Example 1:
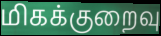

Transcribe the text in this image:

மிகக்குறைவு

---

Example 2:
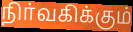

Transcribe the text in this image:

நிர்வகிக்கும்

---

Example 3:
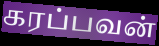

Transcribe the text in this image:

கரப்பவன்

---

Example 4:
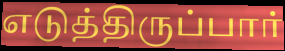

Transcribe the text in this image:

எடுத்திருப்பார்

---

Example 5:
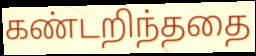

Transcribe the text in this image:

கண்டறிந்ததை